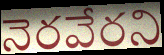
నెరవేరని